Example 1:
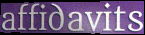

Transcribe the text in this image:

affidavits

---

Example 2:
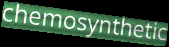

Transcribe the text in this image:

chemosynthetic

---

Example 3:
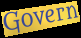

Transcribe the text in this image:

Govern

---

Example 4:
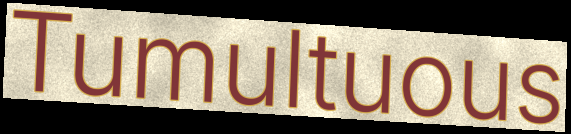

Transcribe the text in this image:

Tumultuous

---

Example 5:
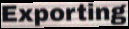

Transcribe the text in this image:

Exporting